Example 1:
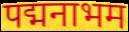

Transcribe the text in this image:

पद्मनाभम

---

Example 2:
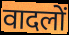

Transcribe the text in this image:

वादलों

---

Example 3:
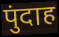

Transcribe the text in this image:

पुंदाह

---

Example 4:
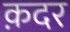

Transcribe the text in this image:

क़दर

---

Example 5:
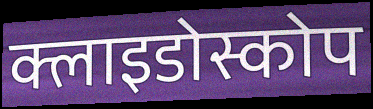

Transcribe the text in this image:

क्लाइडोस्कोप